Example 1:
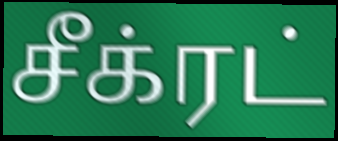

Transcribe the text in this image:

சீக்ரட்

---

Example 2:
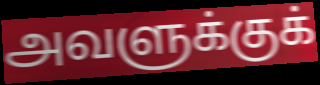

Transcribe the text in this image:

அவளுக்குக்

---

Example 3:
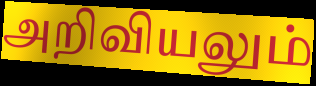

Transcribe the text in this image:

அறிவியலும்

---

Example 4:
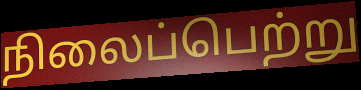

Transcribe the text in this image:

நிலைப்பெற்று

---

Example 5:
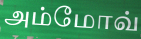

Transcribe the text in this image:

அம்மோவ்